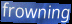
frowning